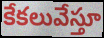
కేకలువేస్తూ